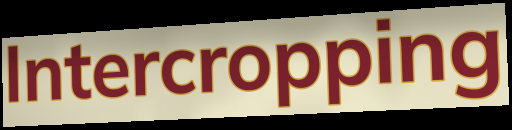
Intercropping